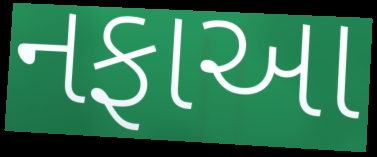
નફાઆ